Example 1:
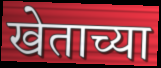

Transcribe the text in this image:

खेताच्या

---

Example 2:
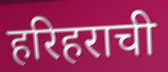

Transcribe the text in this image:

हरिहराची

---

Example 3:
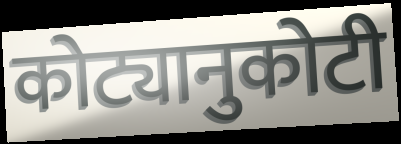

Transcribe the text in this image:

कोट्यानुकोटी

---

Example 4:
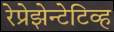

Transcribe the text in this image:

रेप्रेझेन्टेटिव्ह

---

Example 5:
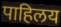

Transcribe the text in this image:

पाहिलय